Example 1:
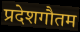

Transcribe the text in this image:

प्रदेशगौतम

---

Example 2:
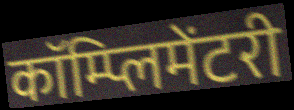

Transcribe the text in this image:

कॉम्प्लिमेंटरी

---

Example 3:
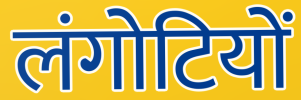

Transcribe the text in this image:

लंगोटियों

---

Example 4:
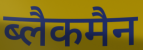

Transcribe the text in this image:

ब्लैकमैन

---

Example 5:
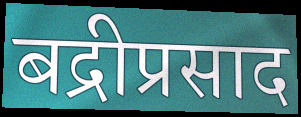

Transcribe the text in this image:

बद्रीप्रसाद